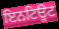
ਇਨਟਿਊਟ